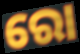
ରୋ